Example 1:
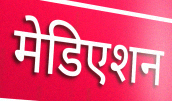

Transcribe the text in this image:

मेडिएशन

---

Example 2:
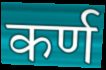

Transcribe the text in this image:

कर्ण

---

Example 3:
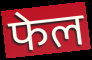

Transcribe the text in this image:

फेल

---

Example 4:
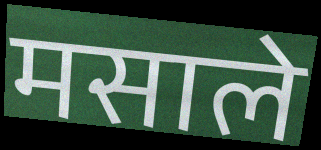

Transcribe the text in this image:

मसाले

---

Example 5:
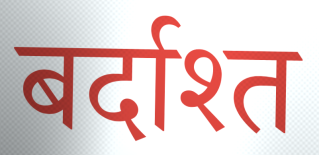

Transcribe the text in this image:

बर्दाश्त